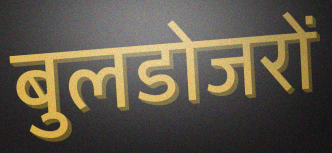
बुलडोजरों